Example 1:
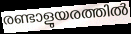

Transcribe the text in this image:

രണ്ടാളുയരത്തിൽ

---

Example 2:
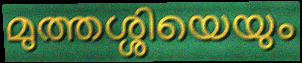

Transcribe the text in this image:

മുത്തശ്ശിയെയും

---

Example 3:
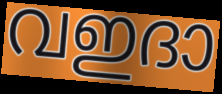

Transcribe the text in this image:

വഇദാ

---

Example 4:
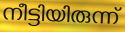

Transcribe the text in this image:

നീട്ടിയിരുന്ന്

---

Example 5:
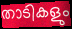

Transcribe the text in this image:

താടികളും